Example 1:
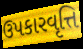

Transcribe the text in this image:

ઉપકારવૃત્તિ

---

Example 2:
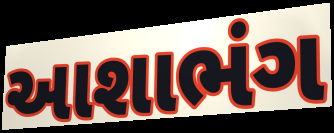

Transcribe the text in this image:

આશાભંગ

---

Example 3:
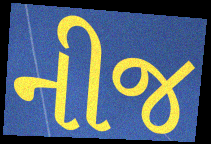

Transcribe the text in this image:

નીજ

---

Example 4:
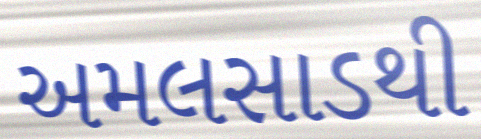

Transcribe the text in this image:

અમલસાડથી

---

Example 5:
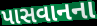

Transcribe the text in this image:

પાસવાનના